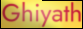
Ghiyath